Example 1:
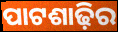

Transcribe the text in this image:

ପାଟଶାଢ଼ିର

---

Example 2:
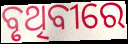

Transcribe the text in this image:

ବୃଥିବୀରେ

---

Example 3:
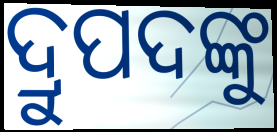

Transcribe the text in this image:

ଦ୍ରୁପଦଙ୍କୁ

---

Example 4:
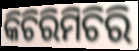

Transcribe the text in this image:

କିଚିରିମିଚିରି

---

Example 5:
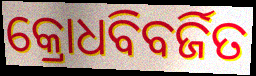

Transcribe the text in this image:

କ୍ରୋଧବିବର୍ଜିତ